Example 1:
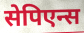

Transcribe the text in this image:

सेपिएन्स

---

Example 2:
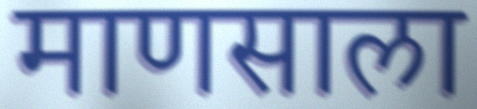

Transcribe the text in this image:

माणसाला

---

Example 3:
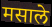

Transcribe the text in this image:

मसाले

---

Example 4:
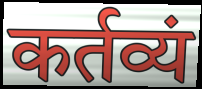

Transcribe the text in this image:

कर्तव्यं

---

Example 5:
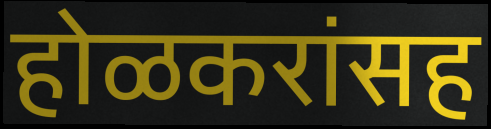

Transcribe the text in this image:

होळकरांसह